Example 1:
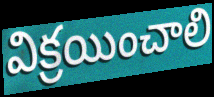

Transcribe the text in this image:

విక్రయించాలి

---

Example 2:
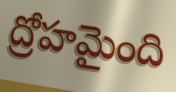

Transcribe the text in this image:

ద్రోహమైంది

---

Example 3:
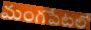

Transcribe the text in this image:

మంగపేటలో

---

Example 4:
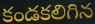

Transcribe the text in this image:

కండకలిగిన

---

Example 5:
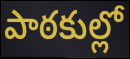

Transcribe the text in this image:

పాఠకుల్లో